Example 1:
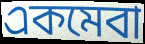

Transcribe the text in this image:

একমেবা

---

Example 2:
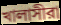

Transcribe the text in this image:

খালাসীরা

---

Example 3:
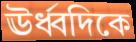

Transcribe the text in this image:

ঊর্ধ্বদিকে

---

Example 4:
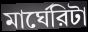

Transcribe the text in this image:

মার্ঘেরিটা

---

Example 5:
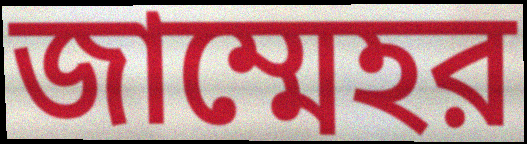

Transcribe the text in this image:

জাম্মেহর